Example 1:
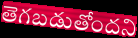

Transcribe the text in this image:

తెగబడుతోందని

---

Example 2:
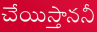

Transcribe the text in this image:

చేయిస్తాననీ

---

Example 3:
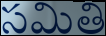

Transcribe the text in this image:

సమితి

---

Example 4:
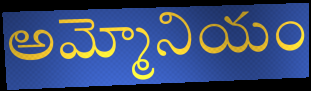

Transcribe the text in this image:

అమ్మోనియం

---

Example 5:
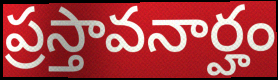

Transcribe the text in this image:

ప్రస్తావనార్హం